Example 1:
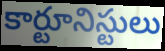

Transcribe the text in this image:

కార్టూనిస్టులు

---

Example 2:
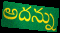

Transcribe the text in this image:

అదన్ను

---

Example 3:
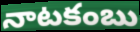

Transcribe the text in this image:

నాటకంబు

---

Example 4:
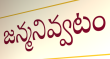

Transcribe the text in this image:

జన్మనివ్వటం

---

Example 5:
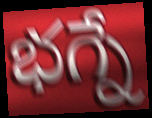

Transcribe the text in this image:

భగ్నే